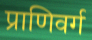
प्राणिवर्ग